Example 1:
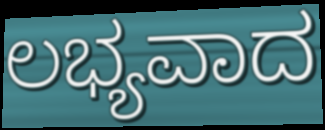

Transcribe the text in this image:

ಲಭ್ಯವಾದ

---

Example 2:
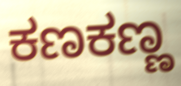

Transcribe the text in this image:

ಕಣಕಣ್ಣ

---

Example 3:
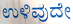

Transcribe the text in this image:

ಉಳಿವುದೇ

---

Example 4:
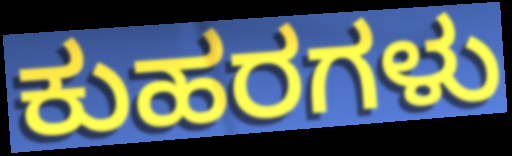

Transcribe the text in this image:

ಕುಹರಗಳು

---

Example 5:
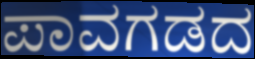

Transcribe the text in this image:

ಪಾವಗಡದ